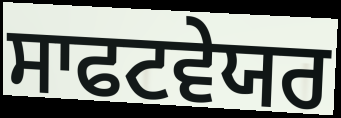
ਸਾਫਟਵੇਯਰ